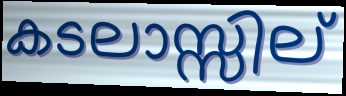
കടലാസ്സില്